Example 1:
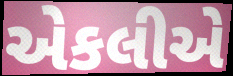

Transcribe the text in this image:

એકલીએ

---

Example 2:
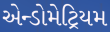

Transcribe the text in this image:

એન્ડોમેટ્રિયમ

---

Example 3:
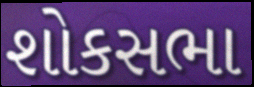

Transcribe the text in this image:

શોકસભા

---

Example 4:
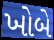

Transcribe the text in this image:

ખોબે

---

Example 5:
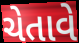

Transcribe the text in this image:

ચેતાવે